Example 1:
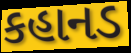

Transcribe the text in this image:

કહાનડ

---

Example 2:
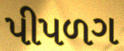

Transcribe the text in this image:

પીપળગ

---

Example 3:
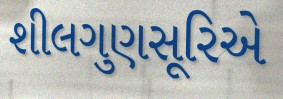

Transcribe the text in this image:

શીલગુણસૂરિએ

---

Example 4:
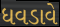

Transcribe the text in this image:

ધવડાવે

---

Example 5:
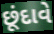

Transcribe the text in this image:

છૂંદાવે